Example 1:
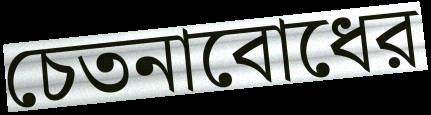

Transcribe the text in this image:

চেতনাবোধের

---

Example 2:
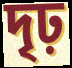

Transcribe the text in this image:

দৃঢ়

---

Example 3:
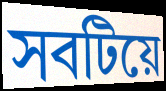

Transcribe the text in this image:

সবটিয়ে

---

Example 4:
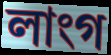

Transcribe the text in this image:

লাংগ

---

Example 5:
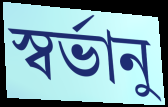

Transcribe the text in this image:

স্বর্ভানু